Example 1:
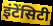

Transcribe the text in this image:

इंटेंसिटी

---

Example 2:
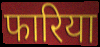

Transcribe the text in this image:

फारिया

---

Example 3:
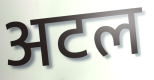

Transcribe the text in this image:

अटल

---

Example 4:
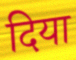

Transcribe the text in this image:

दिया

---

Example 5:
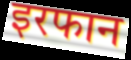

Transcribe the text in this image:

इरफान